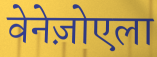
वेनेज़ोएला